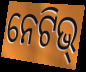
ନେଟିଭ୍